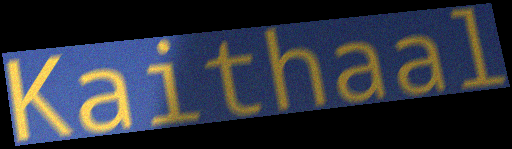
Kaithaal